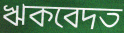
ঋকবেদত